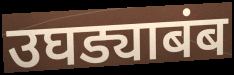
उघड्याबंब